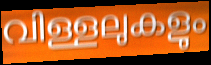
വിള്ളലുകളും